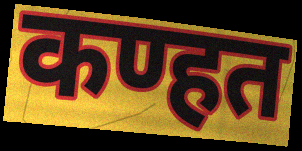
कण्हत